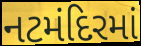
નટમંદિરમાં